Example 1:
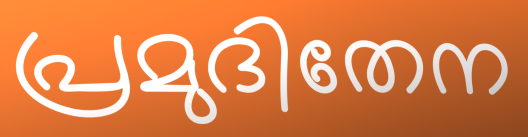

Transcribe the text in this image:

പ്രമുദിതേന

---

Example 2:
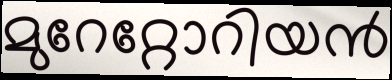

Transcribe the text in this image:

മുറേറ്റോറിയൻ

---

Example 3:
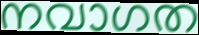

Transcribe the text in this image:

നവാഗത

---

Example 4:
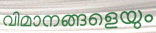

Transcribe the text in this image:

വിമാനങ്ങളെയും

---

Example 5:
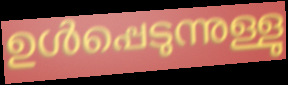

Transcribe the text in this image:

ഉൾപ്പെടുന്നുള്ളു